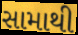
સામાથી